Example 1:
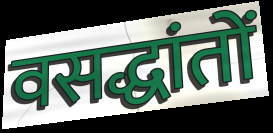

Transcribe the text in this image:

वसद्धांतों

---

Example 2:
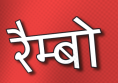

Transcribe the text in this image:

रैम्बो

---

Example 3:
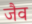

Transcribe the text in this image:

जैव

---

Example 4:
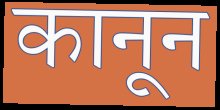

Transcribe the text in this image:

कानून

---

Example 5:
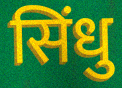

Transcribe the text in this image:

सिंधु